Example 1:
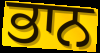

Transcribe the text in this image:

ਭਾਨ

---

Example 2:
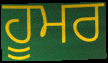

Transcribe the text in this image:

ਹੂਮਰ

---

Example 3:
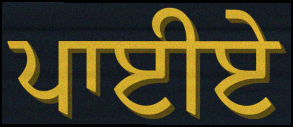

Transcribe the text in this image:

ਪਾਈਏ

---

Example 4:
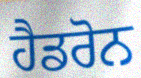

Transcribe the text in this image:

ਹੈਡਰੋਨ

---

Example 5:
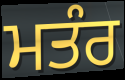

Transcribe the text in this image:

ਮਤੰਰ